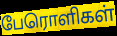
பேரொளிகள்